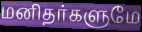
மனிதர்களுமே